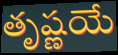
తృష్ణయే